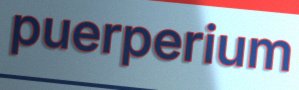
puerperium